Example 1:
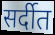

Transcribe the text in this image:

सर्दीत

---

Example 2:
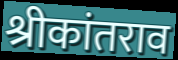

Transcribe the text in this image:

श्रीकांतराव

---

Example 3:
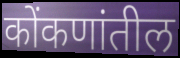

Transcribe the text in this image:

कोंकणांतील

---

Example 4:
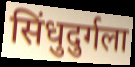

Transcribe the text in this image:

सिंधुदुर्गला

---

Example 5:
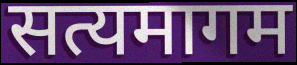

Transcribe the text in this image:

सत्यमागम